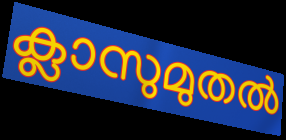
ക്ലാസുമുതൽ